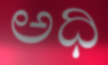
ಅಧಿ